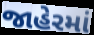
જાહેરમાં